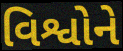
વિશ્વોને